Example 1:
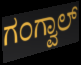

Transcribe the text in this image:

ಗಂಗ್ವಾಲ್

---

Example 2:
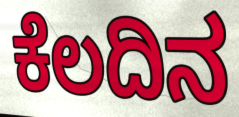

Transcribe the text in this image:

ಕೆಲದಿನ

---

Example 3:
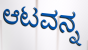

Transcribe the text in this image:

ಆಟವನ್ನ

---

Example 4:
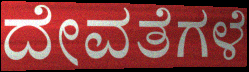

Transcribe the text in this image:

ದೇವತೆಗಳೆ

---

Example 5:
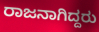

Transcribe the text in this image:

ರಾಜನಾಗಿದ್ದರು